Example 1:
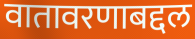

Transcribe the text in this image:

वातावरणाबद्दल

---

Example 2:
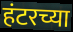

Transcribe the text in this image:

हंटरच्या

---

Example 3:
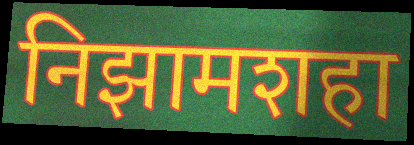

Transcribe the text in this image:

निझामशहा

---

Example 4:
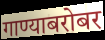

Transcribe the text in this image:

गाण्याबरोबर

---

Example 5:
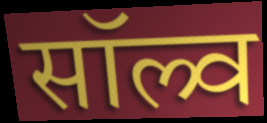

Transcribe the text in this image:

सॉल्व